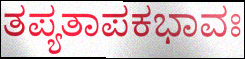
ತಪ್ಯತಾಪಕಭಾವಃ